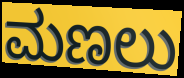
ಮಣಲು